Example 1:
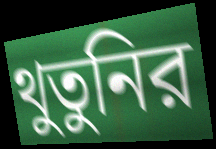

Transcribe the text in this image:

থুতুনির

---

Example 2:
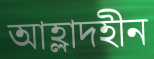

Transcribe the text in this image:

আহ্লাদহীন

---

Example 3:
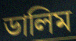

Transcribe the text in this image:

ডালিম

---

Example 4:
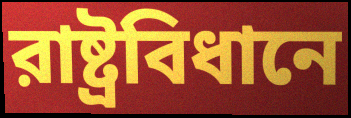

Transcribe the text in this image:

রাষ্ট্রবিধানে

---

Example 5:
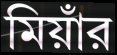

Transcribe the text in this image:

মিয়াঁর